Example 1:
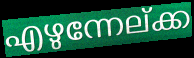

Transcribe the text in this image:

എഴുന്നേല്ക്ക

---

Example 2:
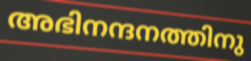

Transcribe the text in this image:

അഭിനന്ദനത്തിനു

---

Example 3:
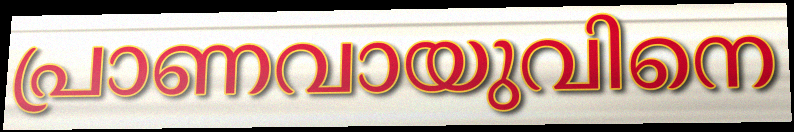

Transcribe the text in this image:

പ്രാണവായുവിനെ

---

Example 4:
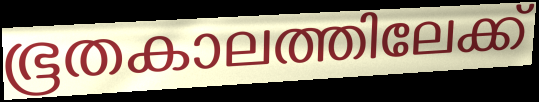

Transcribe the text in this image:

ഭൂതകാലത്തിലേക്ക്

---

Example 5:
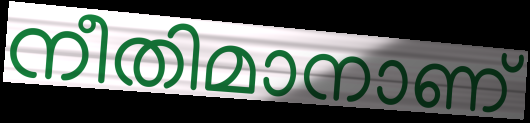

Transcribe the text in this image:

നീതിമാനാണ്